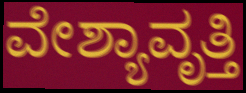
ವೇಶ್ಯಾವೃತ್ತಿ